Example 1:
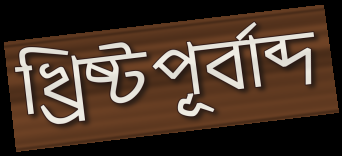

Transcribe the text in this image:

খ্রিষ্টপূর্বাব্দ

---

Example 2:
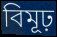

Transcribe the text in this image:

বিমূঢ়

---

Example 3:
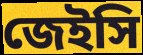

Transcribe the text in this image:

জেইসি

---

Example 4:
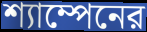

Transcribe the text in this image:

শ্যাম্পেনের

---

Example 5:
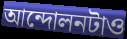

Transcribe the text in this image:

আন্দোলনটাও